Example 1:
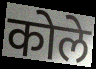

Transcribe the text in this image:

कोले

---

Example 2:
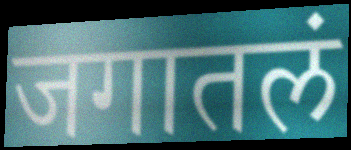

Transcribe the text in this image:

जगातलं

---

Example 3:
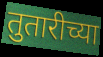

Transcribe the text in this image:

तुतारीच्या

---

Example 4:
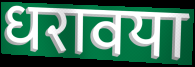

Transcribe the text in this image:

धरावया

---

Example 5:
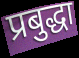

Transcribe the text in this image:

प्रबुद्धा